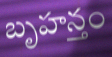
బృహన్తం